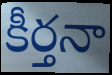
కీర్తనా